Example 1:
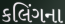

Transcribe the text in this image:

કલિંગના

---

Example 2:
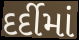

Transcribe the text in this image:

દર્દીમાં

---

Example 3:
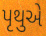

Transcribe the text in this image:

પૃથુએ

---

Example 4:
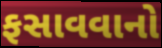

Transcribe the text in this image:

ફસાવવાનો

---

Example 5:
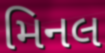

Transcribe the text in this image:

મિનલ